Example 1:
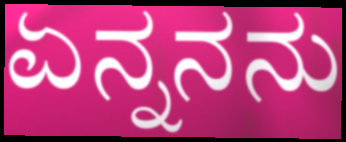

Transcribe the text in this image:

ಏನ್ನನನು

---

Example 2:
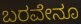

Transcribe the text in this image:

ಬರವೇನೂ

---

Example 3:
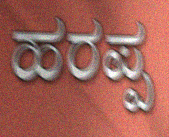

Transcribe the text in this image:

ಹರಪ್ಪ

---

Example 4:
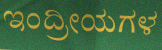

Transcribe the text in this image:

ಇಂದ್ರೀಯಗಳ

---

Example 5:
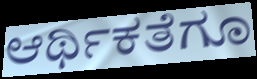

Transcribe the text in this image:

ಆರ್ಥಿಕತೆಗೂ